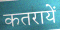
कतरायें